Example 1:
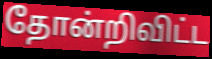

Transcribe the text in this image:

தோன்றிவிட்ட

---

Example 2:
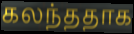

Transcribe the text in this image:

கலந்ததாக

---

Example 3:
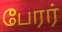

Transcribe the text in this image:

பேரர்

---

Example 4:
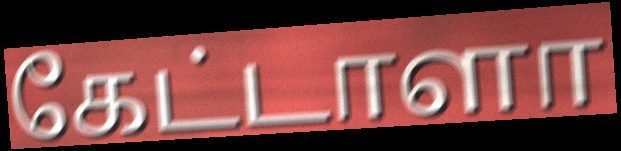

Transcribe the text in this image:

கேட்டாளா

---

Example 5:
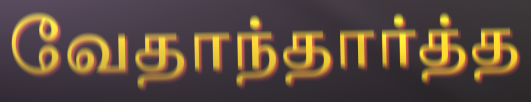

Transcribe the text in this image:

வேதாந்தார்த்த